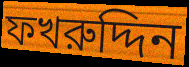
ফখরুদ্দিন